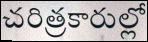
చరిత్రకారుల్లో